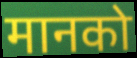
मानको